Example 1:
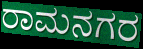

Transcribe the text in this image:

ರಾಮನಗರ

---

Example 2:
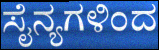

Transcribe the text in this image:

ಸೈನ್ಯಗಳಿಂದ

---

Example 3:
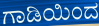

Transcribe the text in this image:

ಗಾಡಿಯಿಂದ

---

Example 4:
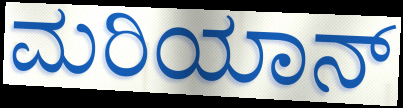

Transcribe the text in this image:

ಮರಿಯಾನ್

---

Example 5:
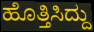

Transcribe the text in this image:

ಹೊತ್ತಿಸಿದ್ದು